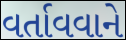
વર્તાવવાને